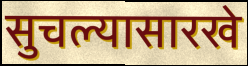
सुचल्यासारखे